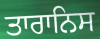
ਤਾਰਾਨਿਸ